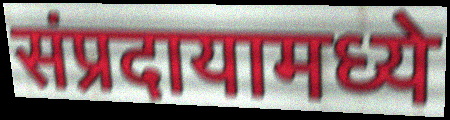
संप्रदायामध्ये